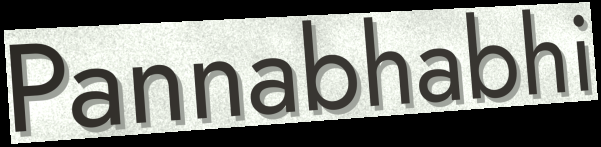
Pannabhabhi